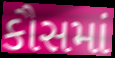
કૌસમાં